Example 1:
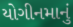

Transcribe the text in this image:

યોગીનમાનું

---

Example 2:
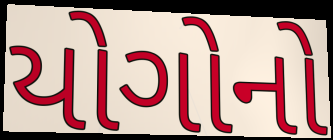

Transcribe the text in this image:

યોગોનો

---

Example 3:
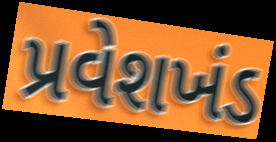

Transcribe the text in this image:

પ્રવેશખંડ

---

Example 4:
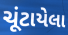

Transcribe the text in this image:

ચૂંટાયેલા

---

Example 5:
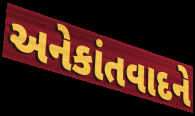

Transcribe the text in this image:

અનેકાંતવાદને